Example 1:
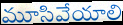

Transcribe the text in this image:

మూసివేయాలి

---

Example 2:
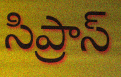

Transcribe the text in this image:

సిప్రాస్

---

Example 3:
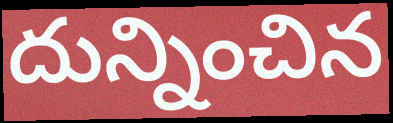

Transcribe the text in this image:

దున్నించిన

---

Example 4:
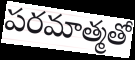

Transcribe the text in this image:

పరమాత్మతో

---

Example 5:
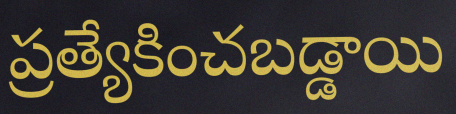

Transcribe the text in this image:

ప్రత్యేకించబడ్డాయి